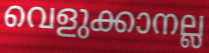
വെളുക്കാനല്ല